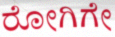
ರೋಗಿಗೇ